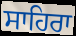
ਸਾਹਿਰਾ